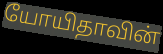
யோயிதாவின்